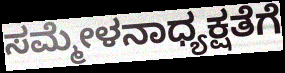
ಸಮ್ಮೇಳನಾಧ್ಯಕ್ಷತೆಗೆ